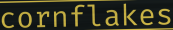
cornflakes